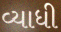
વ્યાધી